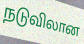
நடுவிலான